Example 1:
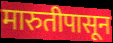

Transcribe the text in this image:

मारुतीपासून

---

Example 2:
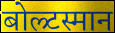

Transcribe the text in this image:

बोल्टस्मान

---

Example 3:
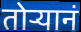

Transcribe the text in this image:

तोऱ्यानं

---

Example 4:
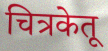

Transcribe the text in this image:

चित्रकेतू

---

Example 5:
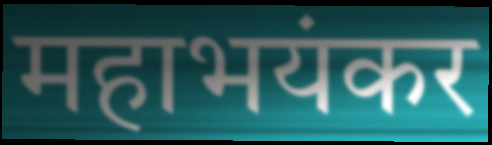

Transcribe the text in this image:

महाभयंकर